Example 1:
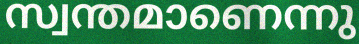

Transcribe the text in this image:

സ്വന്തമാണെന്നു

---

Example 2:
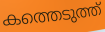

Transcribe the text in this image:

കത്തെടുത്ത്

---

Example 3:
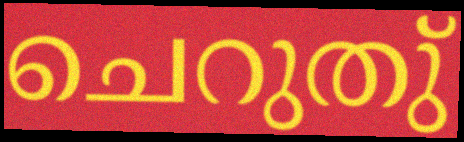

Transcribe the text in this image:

ചെറുതു്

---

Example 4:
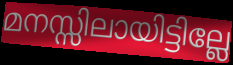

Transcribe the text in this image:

മനസ്സിലായിട്ടില്ലേ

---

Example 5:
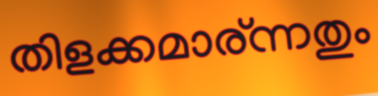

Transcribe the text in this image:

തിളക്കമാര്ന്നതും